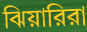
ঝিয়ারিরা